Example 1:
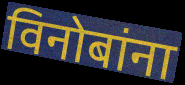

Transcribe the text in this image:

विनोबांना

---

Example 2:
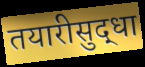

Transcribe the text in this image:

तयारीसुद्धा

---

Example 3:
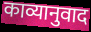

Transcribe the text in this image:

काव्यानुवाद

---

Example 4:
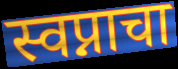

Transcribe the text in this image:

स्वप्नाचा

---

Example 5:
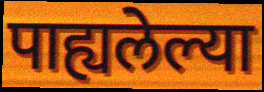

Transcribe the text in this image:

पाह्यलेल्या